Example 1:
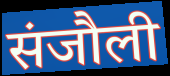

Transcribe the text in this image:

संजौली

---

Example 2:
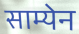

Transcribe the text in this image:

साम्येन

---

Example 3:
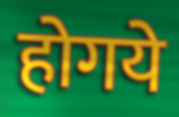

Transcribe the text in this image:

होगये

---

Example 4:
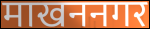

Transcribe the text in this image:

माखननगर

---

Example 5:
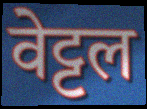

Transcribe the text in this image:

वेट्टल